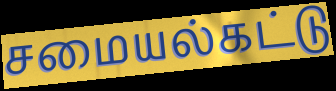
சமையல்கட்டு